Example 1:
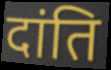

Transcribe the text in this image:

दांति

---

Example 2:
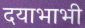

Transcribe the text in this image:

दयाभाभी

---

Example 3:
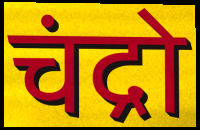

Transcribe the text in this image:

चंद्रो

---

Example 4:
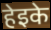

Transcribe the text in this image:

हेइके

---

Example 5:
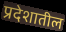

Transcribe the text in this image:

प्रदेशातील